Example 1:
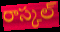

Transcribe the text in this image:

రాస్కల్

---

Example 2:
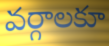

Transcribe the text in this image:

వర్గాలకూ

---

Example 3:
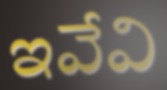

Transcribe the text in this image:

ఇవేవి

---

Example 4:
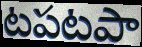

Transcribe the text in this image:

టపటపా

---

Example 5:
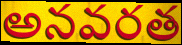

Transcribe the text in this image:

అనవరత